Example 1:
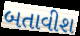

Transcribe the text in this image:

બતાવીશ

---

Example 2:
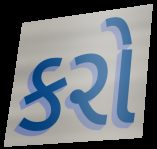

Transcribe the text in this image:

કરો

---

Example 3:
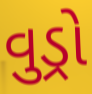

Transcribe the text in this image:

વુડ્રો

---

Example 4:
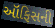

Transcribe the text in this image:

ઑફિસની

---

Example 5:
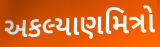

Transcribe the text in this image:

અકલ્યાણમિત્રો